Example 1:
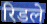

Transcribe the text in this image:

रिडले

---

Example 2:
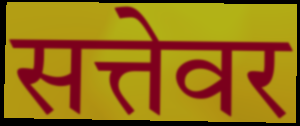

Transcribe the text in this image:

सत्तेवर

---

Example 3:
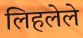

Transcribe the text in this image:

लिहलेले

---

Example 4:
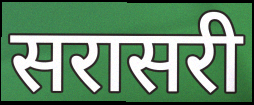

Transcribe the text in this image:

सरासरी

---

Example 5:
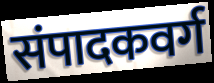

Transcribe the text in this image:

संपादकवर्ग